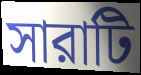
সারাটি